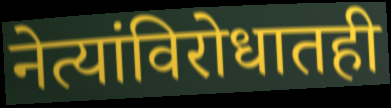
नेत्यांविरोधातही